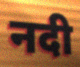
नदी